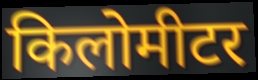
किलोमीटर